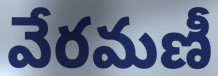
వేరమణీ